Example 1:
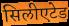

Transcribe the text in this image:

सिलीएटेड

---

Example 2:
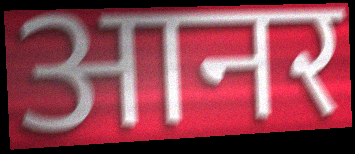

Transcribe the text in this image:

आनर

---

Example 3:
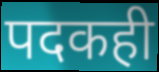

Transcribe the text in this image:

पदकही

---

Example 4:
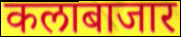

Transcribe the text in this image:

कलाबाजार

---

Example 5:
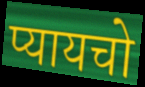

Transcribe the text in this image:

प्यायचो